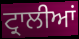
ਟ੍ਰਾਲੀਆਂ